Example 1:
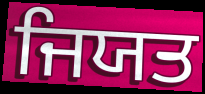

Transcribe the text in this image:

ਜਿਯਤ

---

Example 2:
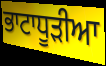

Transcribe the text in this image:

ਭਾਟਾਧੂੜੀਆ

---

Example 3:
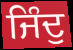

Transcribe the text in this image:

ਜਿੰਦੁ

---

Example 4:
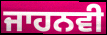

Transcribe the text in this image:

ਜਾਹਨਵੀ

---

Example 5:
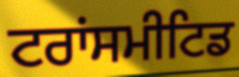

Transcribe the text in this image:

ਟਰਾਂਸਮੀਟਿਡ